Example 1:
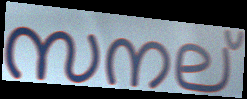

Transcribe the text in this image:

സനല്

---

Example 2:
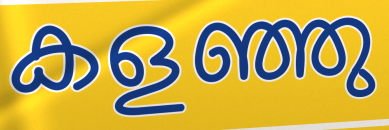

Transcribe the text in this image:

കളഞ്ഞു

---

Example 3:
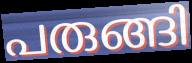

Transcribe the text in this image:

പരുങ്ങി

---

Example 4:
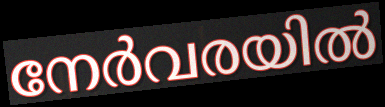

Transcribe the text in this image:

നേർവരയിൽ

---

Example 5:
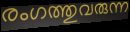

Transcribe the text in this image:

രംഗത്തുവരുന്ന